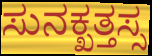
ಸುನಕ್ಖತ್ತಸ್ಸ